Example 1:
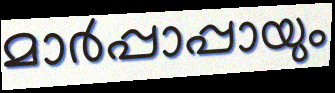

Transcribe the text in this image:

മാർപ്പാപ്പായും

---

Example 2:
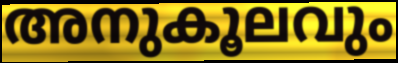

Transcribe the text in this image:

അനുകൂലവും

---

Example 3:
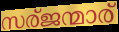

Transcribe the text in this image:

സര്ജന്മാര്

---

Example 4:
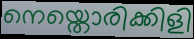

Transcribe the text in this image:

നെയ്തൊരിക്കിളി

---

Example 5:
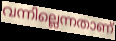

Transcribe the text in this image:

വന്നില്ലെന്നതാണ്